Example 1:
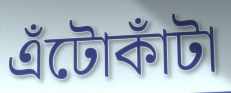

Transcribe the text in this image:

এঁটোকাঁটা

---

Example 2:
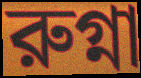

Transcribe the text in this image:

রুগ্না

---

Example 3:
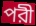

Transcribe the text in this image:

পরী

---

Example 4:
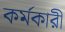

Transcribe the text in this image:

কর্মকারী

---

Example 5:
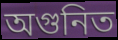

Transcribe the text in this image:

অগুনিত